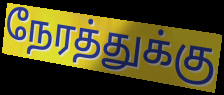
நேரத்துக்கு